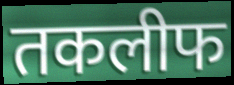
तकलीफ